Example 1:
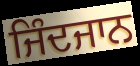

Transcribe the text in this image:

ਜਿੰਦਜਾਨ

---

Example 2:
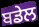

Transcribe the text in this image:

ਬਡੇਲ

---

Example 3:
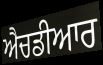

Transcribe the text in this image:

ਐਚਡੀਆਰ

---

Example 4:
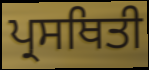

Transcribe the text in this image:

ਪ੍ਰਸਥਿਤੀ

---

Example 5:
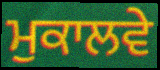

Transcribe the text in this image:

ਮੁਕਾਲਵੇ